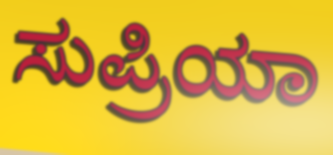
ಸುಪ್ರಿಯಾ